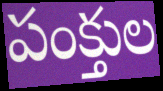
పంక్తుల